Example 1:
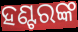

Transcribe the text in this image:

ହଣ୍ଟରଙ୍କ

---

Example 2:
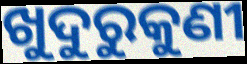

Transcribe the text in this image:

ଖୁଦୁରୁକୁଣୀ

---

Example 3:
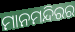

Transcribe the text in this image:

ମାନମନ୍ଦିରର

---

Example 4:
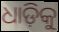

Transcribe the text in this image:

ଧାଡ଼ିକୁ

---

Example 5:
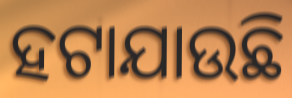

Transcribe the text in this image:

ହଟାଯାଉଛି